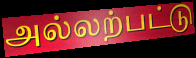
அல்லற்பட்டு